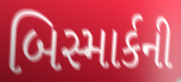
બિસ્માર્કની